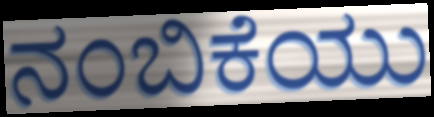
ನಂಬಿಕೆಯು